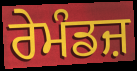
ਰੇਮੰਡਜ਼